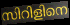
സിറിളിനെ